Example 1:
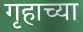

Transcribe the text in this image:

गृहाच्या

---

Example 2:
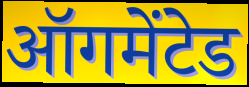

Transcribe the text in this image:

ऑगमेंटेड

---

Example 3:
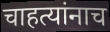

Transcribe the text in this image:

चाहत्यांनाच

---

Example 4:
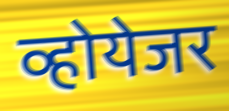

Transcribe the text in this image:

व्होयेजर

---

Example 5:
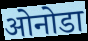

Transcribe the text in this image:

ओनोडा